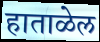
हाताळेल